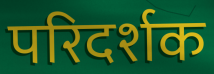
परिदर्शक